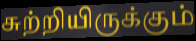
சுற்றியிருக்கும்